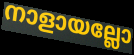
നാളായല്ലോ